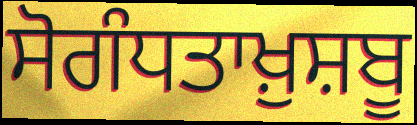
ਸੋਗੰਧਤਾਖ਼ੁਸ਼ਬੂ